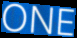
ONE